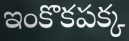
ఇంకొకపక్క